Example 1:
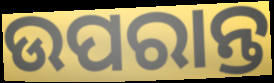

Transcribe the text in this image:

ଉପରାନ୍ତ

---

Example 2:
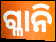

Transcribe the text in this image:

ଗ୍ଳାନି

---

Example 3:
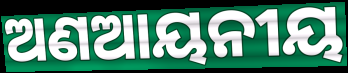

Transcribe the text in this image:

ଅଣଆୟନୀୟ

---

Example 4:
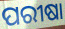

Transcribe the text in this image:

ପରୀଷା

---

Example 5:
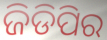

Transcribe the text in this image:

ଜିଡିପିର